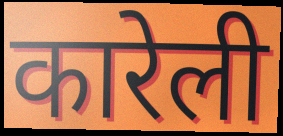
कारेली